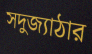
সদুজ্যাঠার